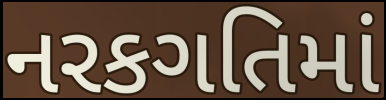
નરકગતિમાં